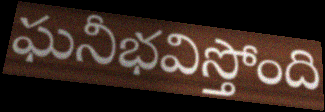
ఘనీభవిస్తోంది